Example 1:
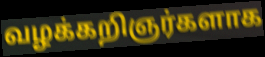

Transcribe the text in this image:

வழக்கறிஞர்களாக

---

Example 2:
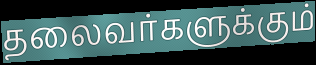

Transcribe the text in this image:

தலைவர்களுக்கும்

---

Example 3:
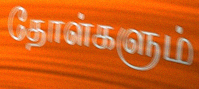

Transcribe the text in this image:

தோள்களும்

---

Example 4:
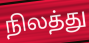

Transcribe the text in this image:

நிலத்து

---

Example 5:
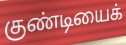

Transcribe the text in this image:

குண்டியைக்